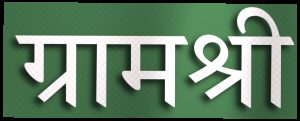
ग्रामश्री